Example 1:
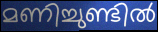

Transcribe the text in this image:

മണിച്ചുണ്ടിൽ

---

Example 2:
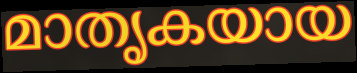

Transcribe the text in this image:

മാതൃകയായ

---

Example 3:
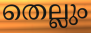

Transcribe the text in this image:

തെല്ലും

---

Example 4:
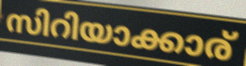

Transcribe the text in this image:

സിറിയാക്കാര്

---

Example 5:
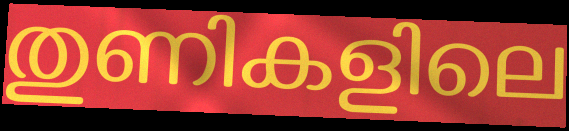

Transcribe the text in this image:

തുണികളിലെ